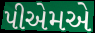
પીએમએ